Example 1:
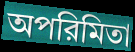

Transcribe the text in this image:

অপরিমিতা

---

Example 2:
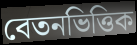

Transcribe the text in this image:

বেতনভিত্তিক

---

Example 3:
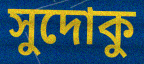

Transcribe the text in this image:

সুদোকু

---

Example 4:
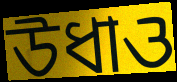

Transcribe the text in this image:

উধাও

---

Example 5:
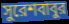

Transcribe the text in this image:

সুরেশবাবুর